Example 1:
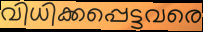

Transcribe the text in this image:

വിധിക്കപ്പെട്ടവരെ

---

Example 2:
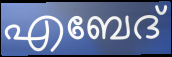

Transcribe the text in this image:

എബേദ്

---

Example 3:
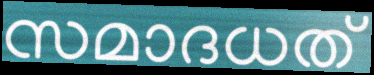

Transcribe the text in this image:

സമാദധത്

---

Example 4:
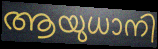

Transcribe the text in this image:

ആയുധാനി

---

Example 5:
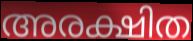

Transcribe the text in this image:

അരക്ഷിത